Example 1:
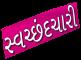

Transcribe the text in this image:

સ્વચ્છંદચારી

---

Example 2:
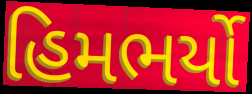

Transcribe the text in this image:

હિમભર્યો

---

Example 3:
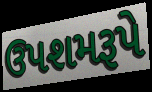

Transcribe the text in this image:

ઉપશમરૂપે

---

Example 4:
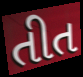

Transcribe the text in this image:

તીત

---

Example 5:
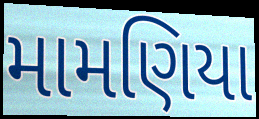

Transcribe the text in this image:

મામણિયા